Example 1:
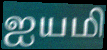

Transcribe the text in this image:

ஐயமி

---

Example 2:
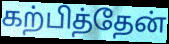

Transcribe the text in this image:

கற்பித்தேன்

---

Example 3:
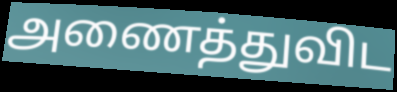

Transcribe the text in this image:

அணைத்துவிட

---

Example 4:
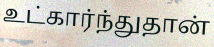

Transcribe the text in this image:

உட்கார்ந்துதான்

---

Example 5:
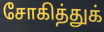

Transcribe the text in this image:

சோகித்துக்